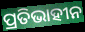
ପ୍ରତିଭାହୀନ